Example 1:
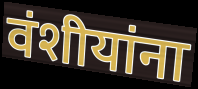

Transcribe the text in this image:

वंशीयांना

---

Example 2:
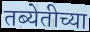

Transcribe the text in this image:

तब्येतीच्या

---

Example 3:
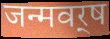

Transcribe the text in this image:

जन्मवर्ष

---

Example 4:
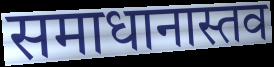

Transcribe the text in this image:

समाधानास्तव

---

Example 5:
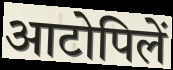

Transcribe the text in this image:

आटोपिलें